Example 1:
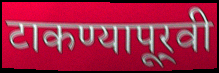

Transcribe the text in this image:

टाकण्यापूर्वी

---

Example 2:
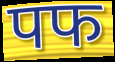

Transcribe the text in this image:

पफ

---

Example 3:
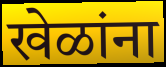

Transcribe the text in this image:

खेळांना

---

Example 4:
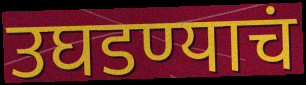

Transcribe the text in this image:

उघडण्याचं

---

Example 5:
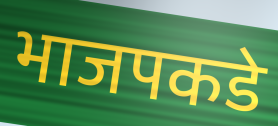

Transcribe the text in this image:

भाजपकडे